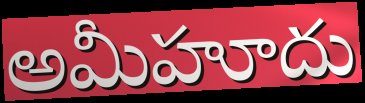
అమీహూదు